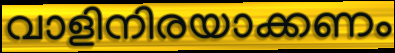
വാളിനിരയാക്കണം